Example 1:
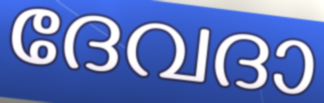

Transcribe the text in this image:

ദേവദാ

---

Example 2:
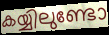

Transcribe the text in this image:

കയ്യിലുണ്ടോ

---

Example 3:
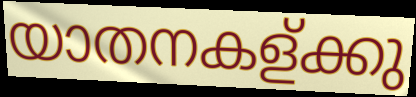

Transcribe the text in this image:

യാതനകള്ക്കു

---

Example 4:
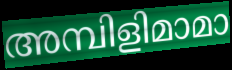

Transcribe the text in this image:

അമ്പിളിമാമാ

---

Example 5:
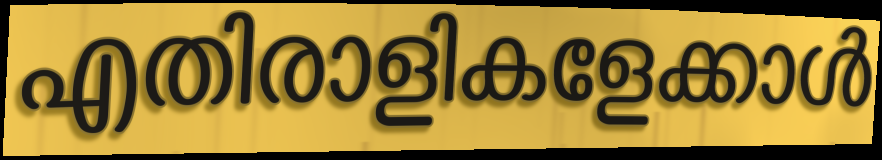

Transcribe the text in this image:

എതിരാളികളേക്കാൾ